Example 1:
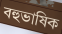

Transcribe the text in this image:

বহুভাষিক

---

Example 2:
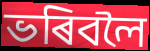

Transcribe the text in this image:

ভৰিবলৈ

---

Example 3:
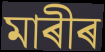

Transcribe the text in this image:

মাৰীৰ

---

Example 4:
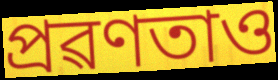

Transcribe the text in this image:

প্ৰৱণতাও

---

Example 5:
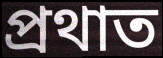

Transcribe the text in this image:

প্ৰথাত